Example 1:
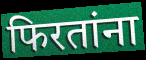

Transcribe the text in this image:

फिरतांना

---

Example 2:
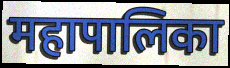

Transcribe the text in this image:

महापालिका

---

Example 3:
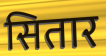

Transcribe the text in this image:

सितार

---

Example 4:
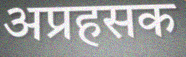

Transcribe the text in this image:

अप्रहसक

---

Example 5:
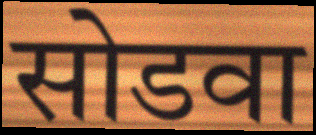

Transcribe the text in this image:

सोडवा